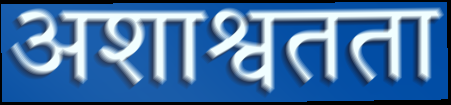
अशाश्वतता